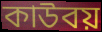
কাউবয়